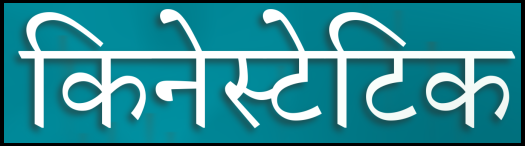
किनेस्टेटिक